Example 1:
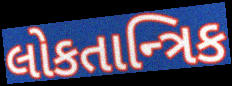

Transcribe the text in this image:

લોકતાન્ત્રિક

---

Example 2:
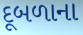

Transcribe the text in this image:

દૂબળાના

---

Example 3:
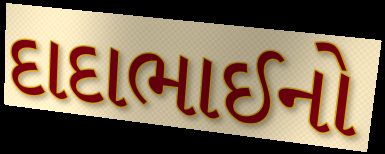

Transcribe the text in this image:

દાદાભાઈનો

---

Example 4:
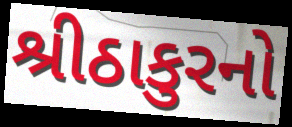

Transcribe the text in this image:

શ્રીઠાકુરનો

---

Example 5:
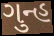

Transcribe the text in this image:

ગુન્હ